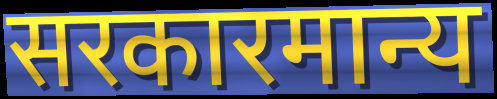
सरकारमान्य